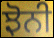
ਝੋਨੀ